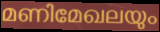
മണിമേഖലയും